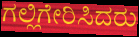
ಗಲ್ಲಿಗೇರಿಸಿದರು